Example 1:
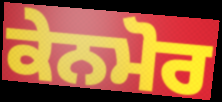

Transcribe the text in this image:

ਕੇਨਮੋਰ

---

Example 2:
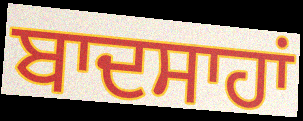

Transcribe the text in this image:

ਬਾਦਸਾਹਾਂ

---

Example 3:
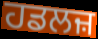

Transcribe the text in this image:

ਹਡਲਜ਼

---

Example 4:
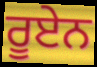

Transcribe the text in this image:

ਰੂਏਨ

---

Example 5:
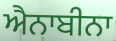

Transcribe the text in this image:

ਐਨਾਬੀਨਾ